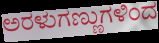
ಅರಳುಗಣ್ಣುಗಳಿಂದ